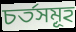
চৰ্তসমূহ